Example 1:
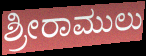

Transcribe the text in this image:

ಶ್ರೀರಾಮುಲು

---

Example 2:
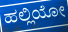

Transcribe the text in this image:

ಹಲ್ಲಿಯೋ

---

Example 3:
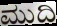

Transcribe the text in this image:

ಮುದಿ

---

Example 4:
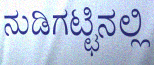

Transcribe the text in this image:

ನುಡಿಗಟ್ಟಿನಲ್ಲಿ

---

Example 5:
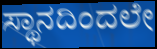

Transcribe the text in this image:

ಸ್ಥಾನದಿಂದಲೇ